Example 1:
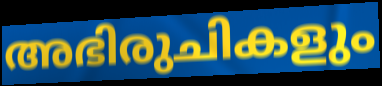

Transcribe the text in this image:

അഭിരുചികളും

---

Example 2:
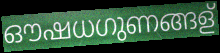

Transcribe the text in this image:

ഔഷധഗുണങ്ങള്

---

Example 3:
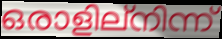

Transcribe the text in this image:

ഒരാളില്നിന്ന്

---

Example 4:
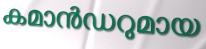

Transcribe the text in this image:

കമാൻഡറുമായ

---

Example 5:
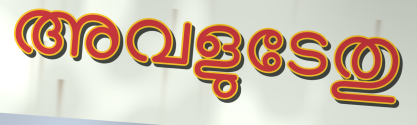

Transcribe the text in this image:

അവളുടേതു